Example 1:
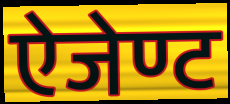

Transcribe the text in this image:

ऐजेण्ट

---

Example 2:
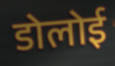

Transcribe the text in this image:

डोलोई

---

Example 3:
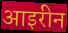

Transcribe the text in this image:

आइरीन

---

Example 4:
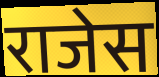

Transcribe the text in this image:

राजेस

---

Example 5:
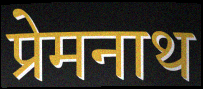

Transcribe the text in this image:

प्रेमनाथ